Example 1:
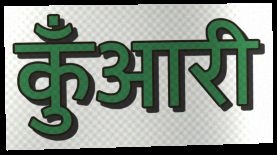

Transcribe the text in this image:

कुँआरी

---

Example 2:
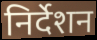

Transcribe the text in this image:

निर्देशन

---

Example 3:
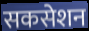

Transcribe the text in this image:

सकसेशन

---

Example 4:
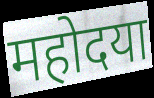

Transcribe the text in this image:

महोदया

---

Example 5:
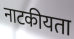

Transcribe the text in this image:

नाटकीयता